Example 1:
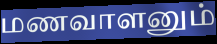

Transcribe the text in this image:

மணவாளனும்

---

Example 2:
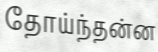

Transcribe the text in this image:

தோய்ந்தன்ன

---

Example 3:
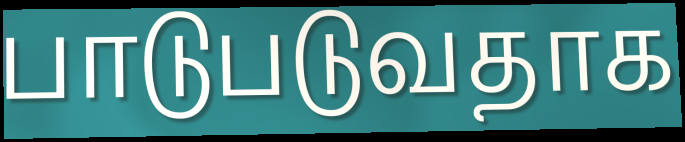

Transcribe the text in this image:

பாடுபடுவதாக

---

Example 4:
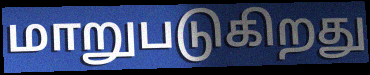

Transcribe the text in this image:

மாறுபடுகிறது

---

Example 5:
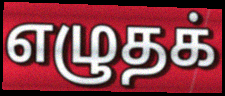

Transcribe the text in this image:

எழுதக்